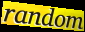
random